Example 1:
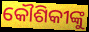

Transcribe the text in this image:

କୌଶିକୀଙ୍କୁ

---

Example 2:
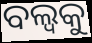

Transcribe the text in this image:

ବଲ୍ବକୁ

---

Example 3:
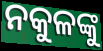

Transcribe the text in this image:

ନକୁଳଙ୍କୁ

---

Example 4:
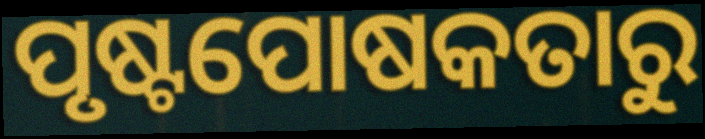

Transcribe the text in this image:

ପୃଷ୍ଟପୋଷକତାରୁ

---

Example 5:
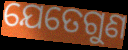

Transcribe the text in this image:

ଯେତେଗୁଣ